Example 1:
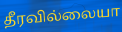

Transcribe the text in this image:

தீரவில்லையா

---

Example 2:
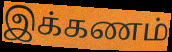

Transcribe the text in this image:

இக்கணம்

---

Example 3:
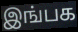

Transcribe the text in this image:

இங்பக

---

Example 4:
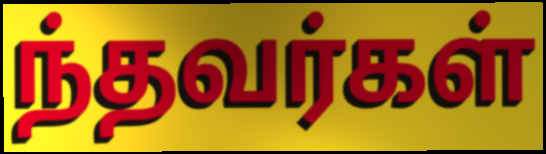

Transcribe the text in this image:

ந்தவர்கள்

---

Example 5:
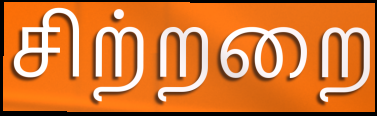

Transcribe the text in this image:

சிற்றறை